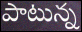
పాటున్న